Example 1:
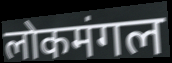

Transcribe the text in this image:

लोकमंगल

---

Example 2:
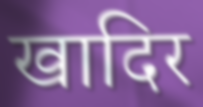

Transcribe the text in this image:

खादिर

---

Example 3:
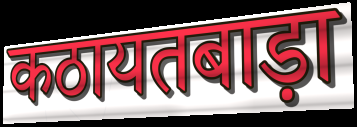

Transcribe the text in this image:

कठायतबाड़ा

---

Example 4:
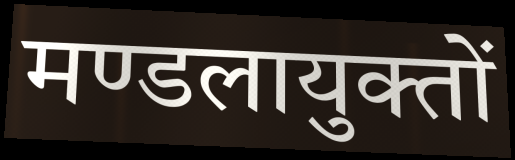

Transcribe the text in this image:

मण्डलायुक्तों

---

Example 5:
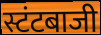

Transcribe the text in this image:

स्टंटबाजी